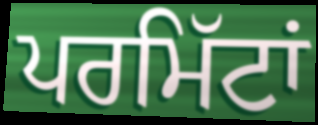
ਪਰਮਿੱਟਾਂ